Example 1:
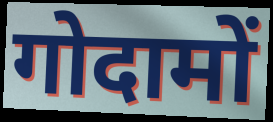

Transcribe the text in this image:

गोदामों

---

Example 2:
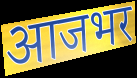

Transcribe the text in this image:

आजभर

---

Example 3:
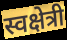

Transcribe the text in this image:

स्वक्षेत्री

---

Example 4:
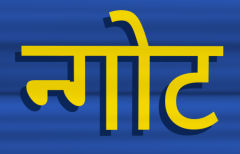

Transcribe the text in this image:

न्गोट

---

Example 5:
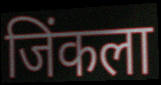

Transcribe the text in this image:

जिंकला